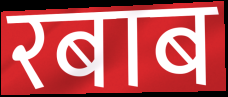
रबाब